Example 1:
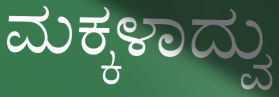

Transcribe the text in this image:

ಮಕ್ಕಳಾದ್ವು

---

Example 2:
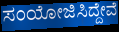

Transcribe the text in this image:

ಸಂಯೋಜಿಸಿದ್ದೇವೆ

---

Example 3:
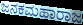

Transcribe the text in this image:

ಜನಕಮಹಾರಾಜ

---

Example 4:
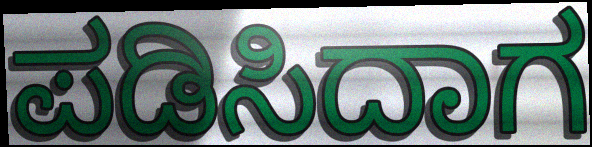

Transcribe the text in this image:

ಪಡಿಸಿದಾಗ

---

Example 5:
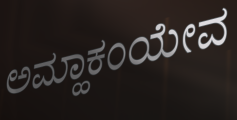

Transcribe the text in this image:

ಅಮ್ಹಾಕಂಯೇವ